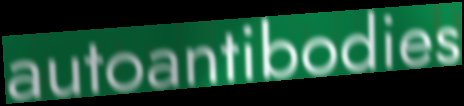
autoantibodies